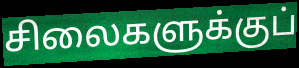
சிலைகளுக்குப்